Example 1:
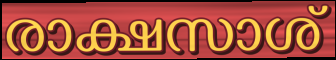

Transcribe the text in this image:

രാക്ഷസാശ്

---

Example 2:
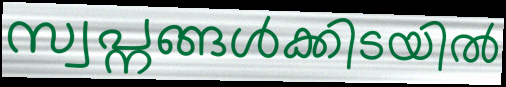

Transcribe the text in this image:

സ്വപ്നങ്ങൾക്കിടയിൽ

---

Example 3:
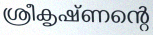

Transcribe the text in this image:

ശ്രീകൃഷ്‌ണന്റെ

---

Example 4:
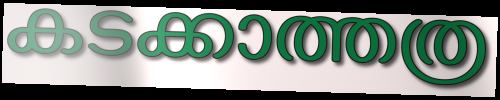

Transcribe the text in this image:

കടക്കാത്തത്ര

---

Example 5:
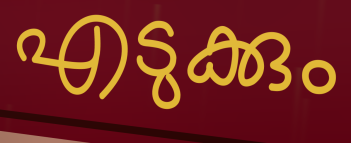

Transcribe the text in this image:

എടുക്കും